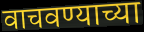
वाचवण्याच्या